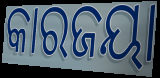
କାରଜୟା